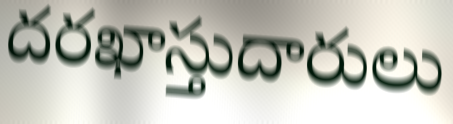
దరఖాస్తుదారులు